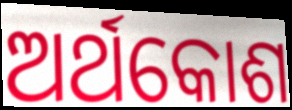
ଅର୍ଥକୋଶ